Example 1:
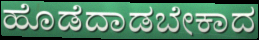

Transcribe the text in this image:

ಹೊಡೆದಾಡಬೇಕಾದ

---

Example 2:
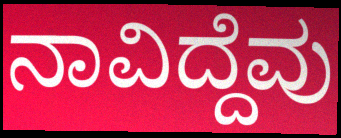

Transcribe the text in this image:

ನಾವಿದ್ದೆವು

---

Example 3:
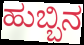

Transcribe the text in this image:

ಹುಬ್ಬಿನ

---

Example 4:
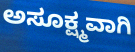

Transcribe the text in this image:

ಅಸೂಕ್ಷ್ಮವಾಗಿ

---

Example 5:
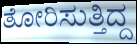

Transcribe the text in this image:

ತೋರಿಸುತ್ತಿದ್ದ